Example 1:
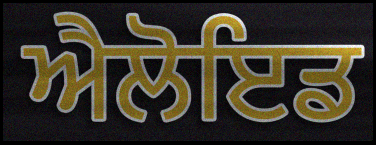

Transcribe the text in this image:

ਐਲੋਇਡ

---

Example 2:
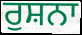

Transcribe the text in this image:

ਰੁਸ਼ਨਾ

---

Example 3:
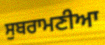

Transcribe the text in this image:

ਸੁਬਰਾਮਣੀਆ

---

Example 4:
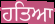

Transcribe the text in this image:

ਹਤਿਆ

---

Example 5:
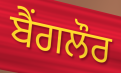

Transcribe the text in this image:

ਬੈਂਗਲੌਰ